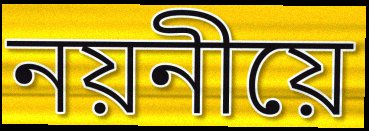
নয়নীয়ে